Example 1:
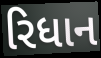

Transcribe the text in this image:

રિધાન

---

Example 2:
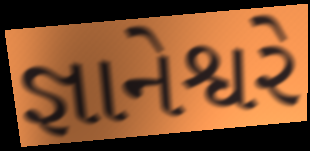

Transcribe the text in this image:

જ્ઞાનેશ્વરે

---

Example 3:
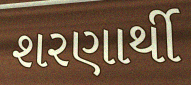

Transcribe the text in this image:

શરણાર્થી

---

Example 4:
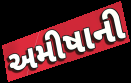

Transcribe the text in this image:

અમીષાની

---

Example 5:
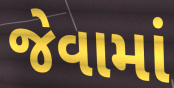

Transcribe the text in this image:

જેવામાં